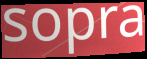
sopra